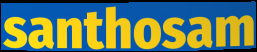
santhosam